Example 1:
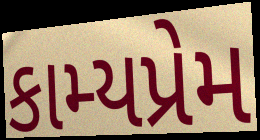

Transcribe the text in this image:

કામ્યપ્રેમ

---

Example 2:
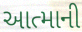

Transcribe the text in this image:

આત્માની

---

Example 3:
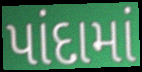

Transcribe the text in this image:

પાંદામાં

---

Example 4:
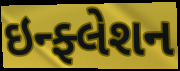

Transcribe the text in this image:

ઇન્ફ્લેશન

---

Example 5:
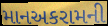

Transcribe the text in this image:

માનઅકરામની